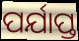
ପର୍ଯାପ୍ତ